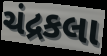
ચંદ્રકલા